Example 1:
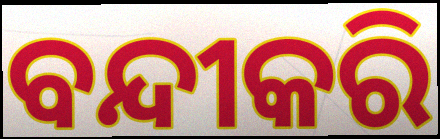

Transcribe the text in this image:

ବନ୍ଦୀକରି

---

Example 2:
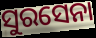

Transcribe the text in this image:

ସୁରସେନା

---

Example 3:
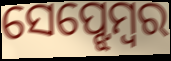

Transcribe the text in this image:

ସେପ୍ଝେମ୍ବର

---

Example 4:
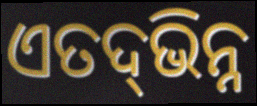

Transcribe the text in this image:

ଏତଦ୍‌ଭିନ୍ନ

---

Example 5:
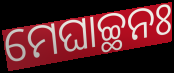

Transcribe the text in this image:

ମେଘାଚ୍ଛନଃ